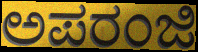
ಅಪರಂಜಿ